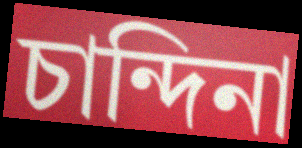
চান্দিনা